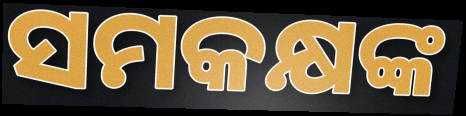
ସମକକ୍ଷଙ୍କ